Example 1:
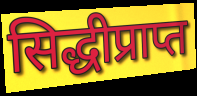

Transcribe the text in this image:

सिद्धीप्राप्त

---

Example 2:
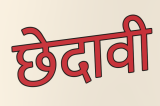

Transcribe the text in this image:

छेदावी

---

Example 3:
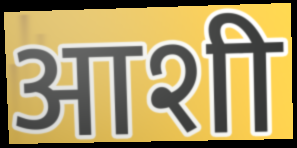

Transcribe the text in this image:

आशी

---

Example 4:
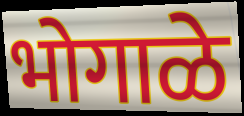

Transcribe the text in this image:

भोगाळे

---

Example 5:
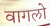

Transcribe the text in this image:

वागलो